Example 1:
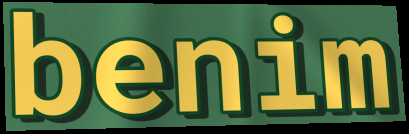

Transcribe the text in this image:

benim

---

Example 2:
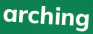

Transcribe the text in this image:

arching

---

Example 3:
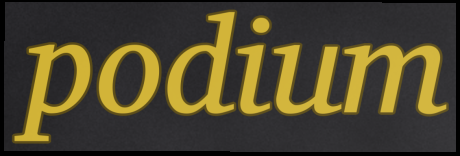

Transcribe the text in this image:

podium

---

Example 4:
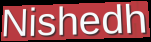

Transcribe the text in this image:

Nishedh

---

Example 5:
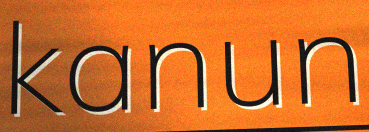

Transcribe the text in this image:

kanun